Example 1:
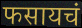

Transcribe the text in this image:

फसायचं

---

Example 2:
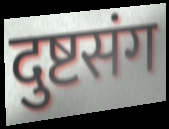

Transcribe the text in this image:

दुष्टसंग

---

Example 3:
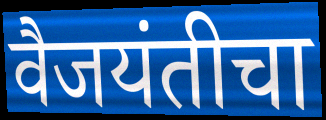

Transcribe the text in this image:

वैजयंतीचा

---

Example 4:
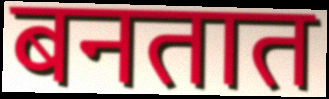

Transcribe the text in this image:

बनतात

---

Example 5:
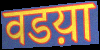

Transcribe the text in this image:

वडय़ा